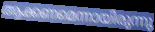
ആക്കണമെന്നായിരുന്നു